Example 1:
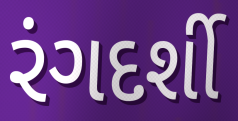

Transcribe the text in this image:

રંગદર્શી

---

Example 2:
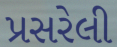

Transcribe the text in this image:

પ્રસરેલી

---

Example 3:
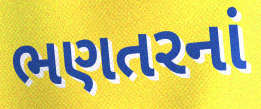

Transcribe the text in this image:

ભણતરનાં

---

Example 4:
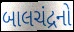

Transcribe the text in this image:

બાલચંદ્રનો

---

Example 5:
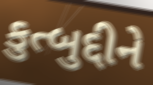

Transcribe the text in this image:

કુત્બુદ્દીને